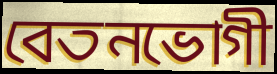
বেতনভোগী